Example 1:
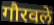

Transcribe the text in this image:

गौरवले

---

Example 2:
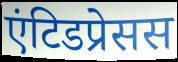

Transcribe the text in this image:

एंटिडप्रेसस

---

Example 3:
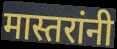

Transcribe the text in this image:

मास्तरांनी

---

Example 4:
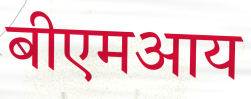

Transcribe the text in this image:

बीएमआय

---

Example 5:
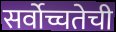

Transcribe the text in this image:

सर्वोच्चतेची